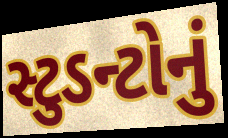
સ્ટુડન્ટોનું